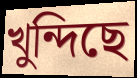
খুন্দিছে